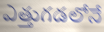
ఎత్తుగడలోనే